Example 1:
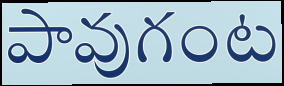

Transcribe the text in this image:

పావుగంట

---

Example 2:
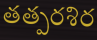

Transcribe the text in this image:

తత్పరశిర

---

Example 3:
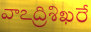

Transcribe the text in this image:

వాఽద్రిశిఖరే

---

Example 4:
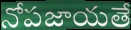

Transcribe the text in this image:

నోపజాయతే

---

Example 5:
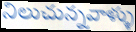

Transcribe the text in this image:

నిలుచున్నవాళ్ళు